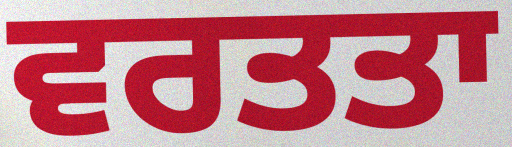
ਵਰਤਤਾ